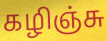
கழிஞ்சு